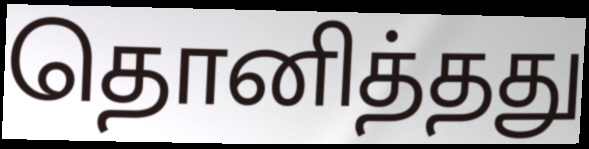
தொனித்தது